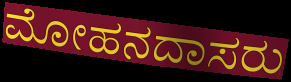
ಮೋಹನದಾಸರು